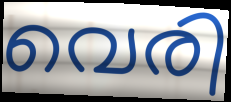
വെരി